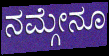
ನಮ್ಗೇನೂ